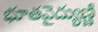
భూతవైద్యుణ్ణి